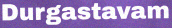
Durgastavam